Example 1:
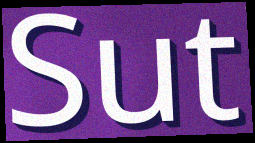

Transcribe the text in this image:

Sut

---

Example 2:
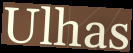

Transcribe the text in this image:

Ulhas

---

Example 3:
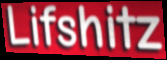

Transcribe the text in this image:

Lifshitz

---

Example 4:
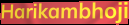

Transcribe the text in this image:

Harikambhoji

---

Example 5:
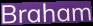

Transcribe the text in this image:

Braham